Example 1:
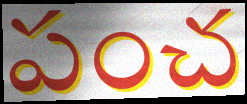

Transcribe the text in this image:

పంచ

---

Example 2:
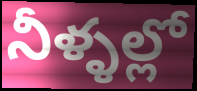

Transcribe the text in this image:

నీళ్ళల్లో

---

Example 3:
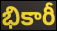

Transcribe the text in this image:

భికారీ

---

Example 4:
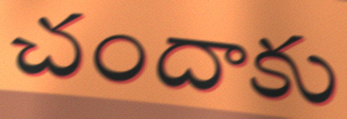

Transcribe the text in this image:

చందాకు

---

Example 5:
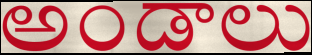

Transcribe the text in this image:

అండాలు